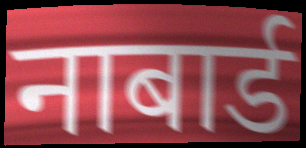
नाबार्ड